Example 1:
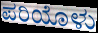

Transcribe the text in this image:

ಪರಿಯೊಳು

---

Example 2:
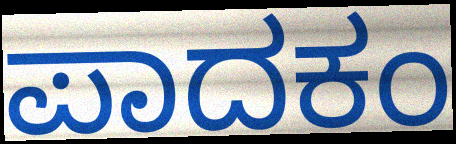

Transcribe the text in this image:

ಪಾದಕಂ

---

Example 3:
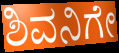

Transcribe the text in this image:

ಶಿವನಿಗೇ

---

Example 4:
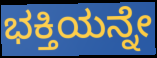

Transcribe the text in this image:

ಭಕ್ತಿಯನ್ನೇ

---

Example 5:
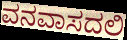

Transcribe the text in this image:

ವನವಾಸದಲಿ